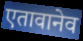
एतावानेव